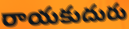
రాయకుదురు